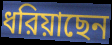
ধরিয়াছেন